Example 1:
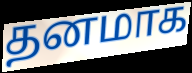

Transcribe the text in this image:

தனமாக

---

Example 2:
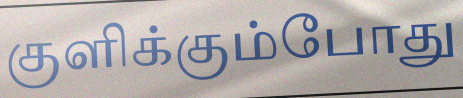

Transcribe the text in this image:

குளிக்கும்போது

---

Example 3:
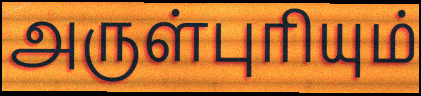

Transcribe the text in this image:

அருள்புரியும்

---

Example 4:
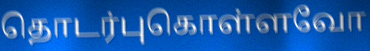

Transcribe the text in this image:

தொடர்புகொள்ளவோ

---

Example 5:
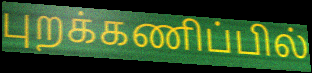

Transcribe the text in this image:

புறக்கணிப்பில்